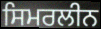
ਸਿਮਰਲੀਨ